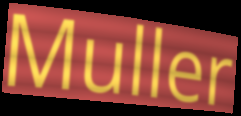
Muller